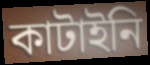
কাটাইনি